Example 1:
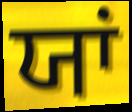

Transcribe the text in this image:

ਯਾਂ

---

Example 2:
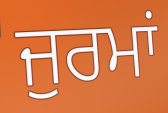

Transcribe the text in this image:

ਜੁਰਮਾਂ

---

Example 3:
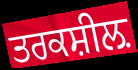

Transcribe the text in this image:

ਤਰਕਸ਼ੀਲ਼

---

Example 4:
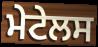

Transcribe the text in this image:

ਮੇਟੇਲਸ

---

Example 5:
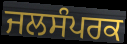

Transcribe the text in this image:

ਜਲਸੰਪਰਕ